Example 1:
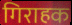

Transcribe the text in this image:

गिराहक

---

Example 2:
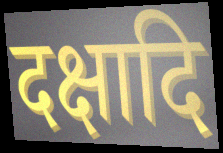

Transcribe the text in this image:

दक्षादि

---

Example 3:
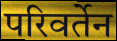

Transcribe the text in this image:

परिवर्तेन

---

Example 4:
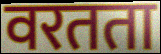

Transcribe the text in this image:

वरतता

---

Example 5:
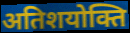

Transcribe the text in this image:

अतिशयोक्ति